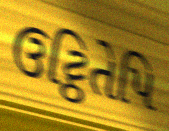
ઉટ્ઠિતેપિ